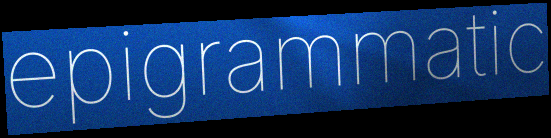
epigrammatic